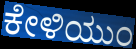
ಕೇಳಿಯುಂ